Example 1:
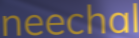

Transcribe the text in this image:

neechal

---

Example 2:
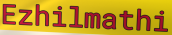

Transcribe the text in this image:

Ezhilmathi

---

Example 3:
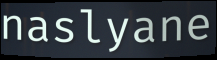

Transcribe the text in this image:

naslyane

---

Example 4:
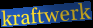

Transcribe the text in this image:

kraftwerk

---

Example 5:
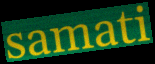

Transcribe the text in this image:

samati